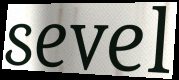
sevel